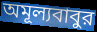
অমূল্যবাবুর